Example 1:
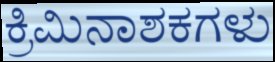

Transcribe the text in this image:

ಕ್ರಿಮಿನಾಶಕಗಳು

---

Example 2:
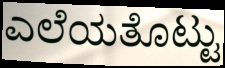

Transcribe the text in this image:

ಎಲೆಯತೊಟ್ಟು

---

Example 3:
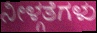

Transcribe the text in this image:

ನೀಳ್ಗತೆಗಳು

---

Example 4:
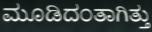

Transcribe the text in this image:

ಮೂಡಿದಂತಾಗಿತ್ತು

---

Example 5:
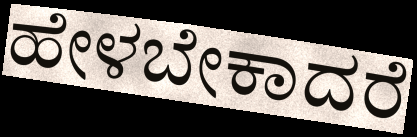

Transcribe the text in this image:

ಹೇಳಬೇಕಾದರೆ